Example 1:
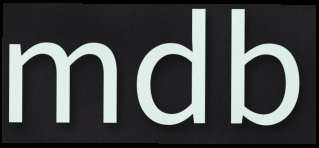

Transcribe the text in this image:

mdb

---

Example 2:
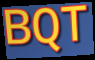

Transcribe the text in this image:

BQT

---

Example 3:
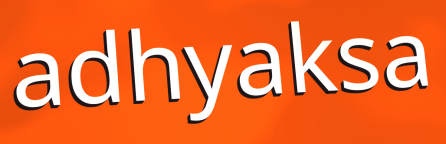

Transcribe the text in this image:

adhyaksa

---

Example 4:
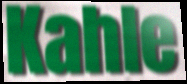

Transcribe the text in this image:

Kahle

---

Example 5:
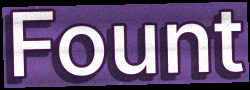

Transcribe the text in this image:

Fount